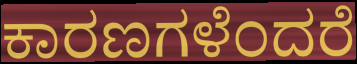
ಕಾರಣಗಳೆಂದರೆ